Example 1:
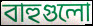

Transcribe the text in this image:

বাহুগুলো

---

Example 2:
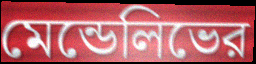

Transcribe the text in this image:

মেন্ডেলিভের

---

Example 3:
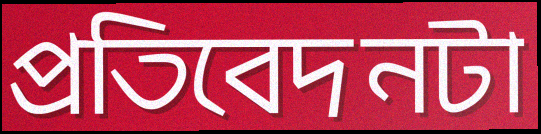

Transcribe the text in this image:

প্রতিবেদনটা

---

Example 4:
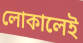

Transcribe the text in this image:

লোকালেই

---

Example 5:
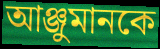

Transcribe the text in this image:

আঞ্জুমানকে